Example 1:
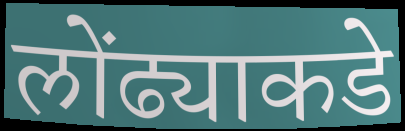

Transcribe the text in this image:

लोंढ्याकडे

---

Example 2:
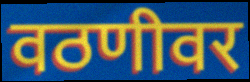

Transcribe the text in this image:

वठणीवर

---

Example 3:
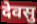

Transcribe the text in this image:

देवसु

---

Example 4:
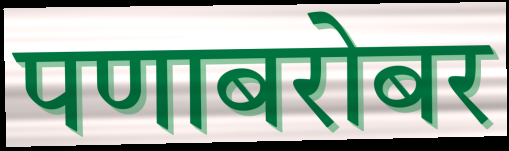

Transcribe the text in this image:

पणाबरोबर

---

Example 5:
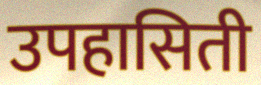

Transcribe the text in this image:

उपहासिती